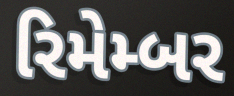
રિમેમ્બર